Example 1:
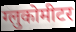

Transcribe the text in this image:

ग्लुकोमीटर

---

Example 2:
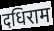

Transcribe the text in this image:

दधिराम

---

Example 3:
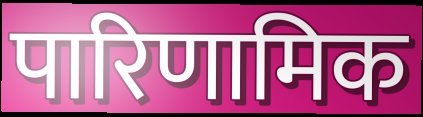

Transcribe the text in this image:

पारिणामिक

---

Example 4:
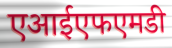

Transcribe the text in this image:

एआईएफएमडी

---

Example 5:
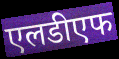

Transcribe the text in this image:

एलडीएफ